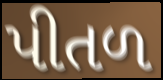
પીતળ